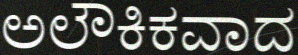
ಅಲೌಕಿಕವಾದ